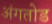
अंगतोड